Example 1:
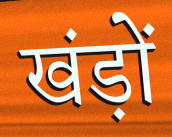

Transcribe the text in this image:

खंड़ों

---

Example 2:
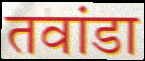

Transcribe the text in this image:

तवांडा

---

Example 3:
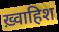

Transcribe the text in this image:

ख़्वाहिश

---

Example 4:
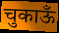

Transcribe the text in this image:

चुकाऊँ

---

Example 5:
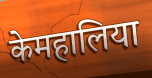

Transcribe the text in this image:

केमहालिया